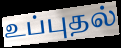
உப்புதல்